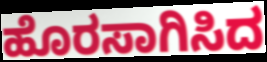
ಹೊರಸಾಗಿಸಿದ